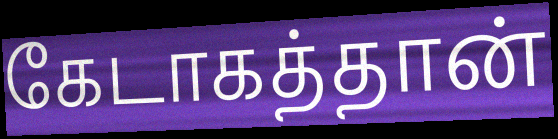
கேடாகத்தான்